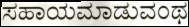
ಸಹಾಯಮಾಡುವಂಥ